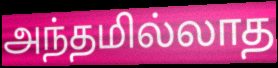
அந்தமில்லாத